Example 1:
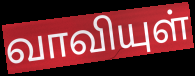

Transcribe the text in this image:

வாவியுள்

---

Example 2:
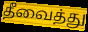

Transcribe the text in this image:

தீவைத்து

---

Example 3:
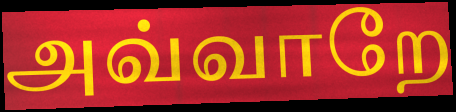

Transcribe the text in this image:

அவ்வாறே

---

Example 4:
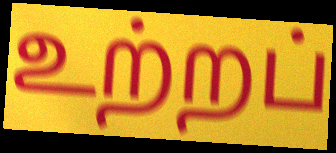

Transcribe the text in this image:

உற்றப்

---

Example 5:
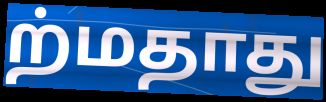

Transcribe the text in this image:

ற்மதாது